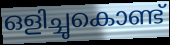
ഒളിച്ചുകൊണ്ട്